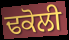
ਢਕੋਲੀ